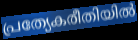
പ്രത്യേകരീതിയിൽ